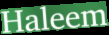
Haleem